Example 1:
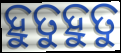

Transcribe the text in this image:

ହୁତୁହୁତୁ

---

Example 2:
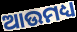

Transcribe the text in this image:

ଆଉମଧ୍ୟ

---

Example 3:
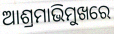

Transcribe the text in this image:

ଆଶ୍ରମାଭିମୁଖରେ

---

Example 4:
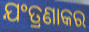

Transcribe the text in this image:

ଯଂତ୍ରଣାକର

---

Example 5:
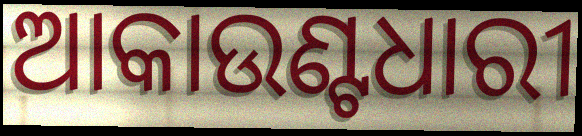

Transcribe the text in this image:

ଆକାଉଣ୍ଟଧାରୀ